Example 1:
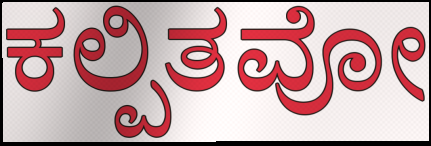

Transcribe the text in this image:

ಕಲ್ಪಿತವೋ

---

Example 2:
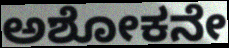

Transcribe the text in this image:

ಅಶೋಕನೇ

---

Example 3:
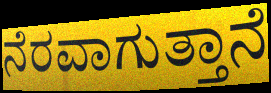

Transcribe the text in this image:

ನೆರವಾಗುತ್ತಾನೆ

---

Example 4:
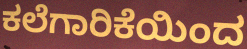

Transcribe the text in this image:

ಕಲೆಗಾರಿಕೆಯಿಂದ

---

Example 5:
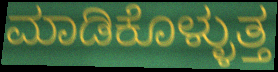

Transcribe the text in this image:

ಮಾಡಿಕೊಳ್ಳುತ್ತ